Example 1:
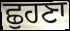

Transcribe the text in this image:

ਛੁਹਣਾ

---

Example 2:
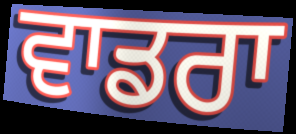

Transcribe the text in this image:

ਵਾਡਰਾ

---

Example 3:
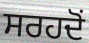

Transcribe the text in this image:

ਸਰਹਦੋਂ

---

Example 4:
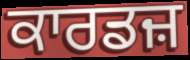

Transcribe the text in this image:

ਕਾਰਡਜ਼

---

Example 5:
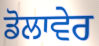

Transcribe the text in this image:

ਡੋਲਾਵੇਰ